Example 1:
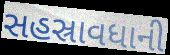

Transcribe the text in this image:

સહસ્રાવધાની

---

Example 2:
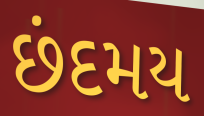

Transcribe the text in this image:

છંદમય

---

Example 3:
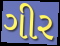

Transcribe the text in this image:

ગીર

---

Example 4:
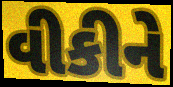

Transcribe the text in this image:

વીકીને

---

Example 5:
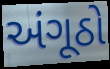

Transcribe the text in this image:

અંગૂઠો